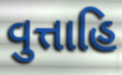
વુત્તાહિ